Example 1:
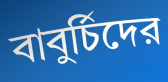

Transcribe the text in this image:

বাবুর্চিদের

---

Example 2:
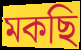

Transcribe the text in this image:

মকছি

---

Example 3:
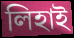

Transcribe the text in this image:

লিহাই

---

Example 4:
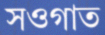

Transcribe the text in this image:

সওগাত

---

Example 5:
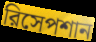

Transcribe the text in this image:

রিসেপশান